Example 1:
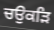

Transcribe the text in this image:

ਚਉਕੜਿ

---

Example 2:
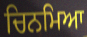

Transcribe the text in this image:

ਚਿਨਮਿਆ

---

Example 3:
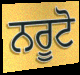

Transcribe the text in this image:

ਨਰੂਟੋ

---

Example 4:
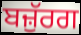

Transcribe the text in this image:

ਬਜ਼ੁੱਰਗ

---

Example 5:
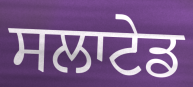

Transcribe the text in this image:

ਸਲਾਟੇਡ